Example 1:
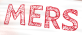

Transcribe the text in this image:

MERS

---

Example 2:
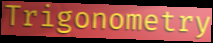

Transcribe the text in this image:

Trigonometry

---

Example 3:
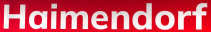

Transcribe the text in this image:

Haimendorf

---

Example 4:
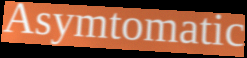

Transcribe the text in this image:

Asymtomatic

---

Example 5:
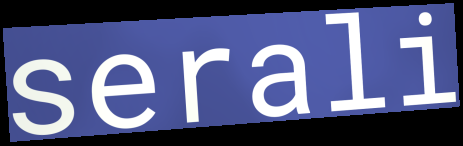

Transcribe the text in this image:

serali